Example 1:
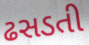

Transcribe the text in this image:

ઢસડતી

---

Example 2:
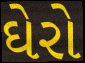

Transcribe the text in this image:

ઘેરો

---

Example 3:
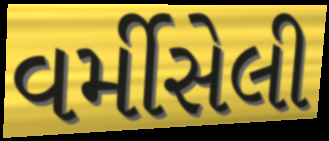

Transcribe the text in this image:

વર્મીસેલી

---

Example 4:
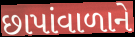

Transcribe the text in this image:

છાપાંવાળાને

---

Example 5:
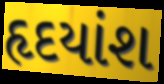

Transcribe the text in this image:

હૃદયાંશ